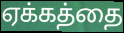
ஏக்கத்தை